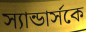
স্যান্ডার্সকে